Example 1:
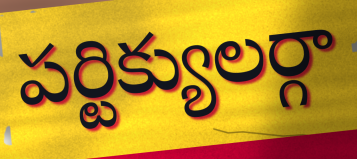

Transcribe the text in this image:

పర్టిక్యులర్గా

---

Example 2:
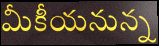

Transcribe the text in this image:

మీకీయనున్న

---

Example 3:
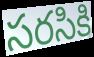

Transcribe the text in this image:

సరసికి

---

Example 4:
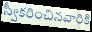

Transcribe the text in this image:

స్వీకరించినవారికి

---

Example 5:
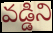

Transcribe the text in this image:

వడ్డిని